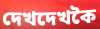
দেখদেখকৈ